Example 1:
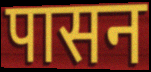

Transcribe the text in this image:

पासन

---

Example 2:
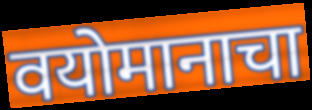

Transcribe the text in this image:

वयोमानाचा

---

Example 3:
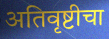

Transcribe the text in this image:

अतिवृष्टीचा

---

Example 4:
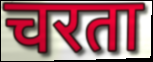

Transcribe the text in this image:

चरता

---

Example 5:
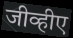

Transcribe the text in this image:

जीव्हीए